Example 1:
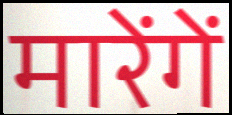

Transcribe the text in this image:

मारेंगें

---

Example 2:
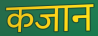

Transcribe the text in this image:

कजान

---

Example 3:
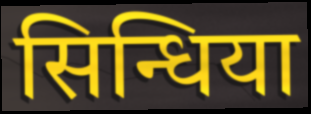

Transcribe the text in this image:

सिन्धिया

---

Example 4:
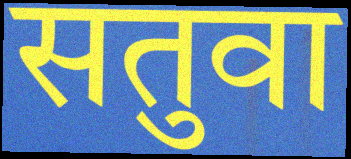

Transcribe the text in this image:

सतुवा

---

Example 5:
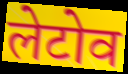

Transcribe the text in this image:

लेटोव